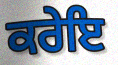
ਕਰੇਇ